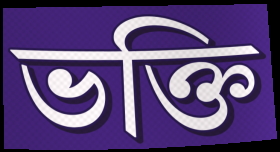
ভক্তি